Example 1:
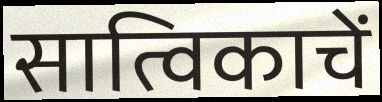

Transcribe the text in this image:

सात्विकाचें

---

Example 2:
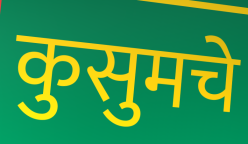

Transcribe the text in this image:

कुसुमचे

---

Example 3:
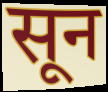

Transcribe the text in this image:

सून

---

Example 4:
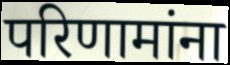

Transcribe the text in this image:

परिणामांना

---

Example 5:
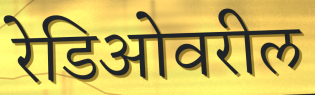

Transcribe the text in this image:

रेडिओवरील